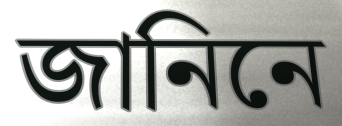
জানিনে